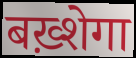
बख़्शेगा